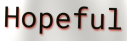
Hopeful